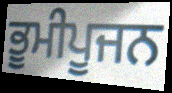
ਭੂਮੀਪੂਜਨ